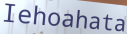
Iehoahata